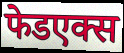
फेडएक्स